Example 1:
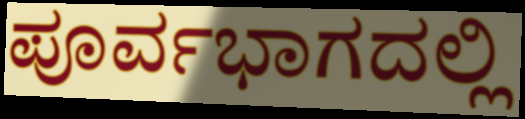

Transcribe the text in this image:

ಪೂರ್ವಭಾಗದಲ್ಲಿ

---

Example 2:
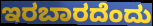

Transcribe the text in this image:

ಇರಬಾರದೆಂದು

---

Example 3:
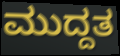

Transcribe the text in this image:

ಮುದ್ದತ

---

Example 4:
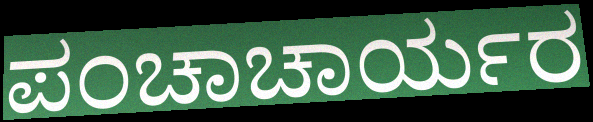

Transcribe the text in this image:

ಪಂಚಾಚಾರ್ಯರ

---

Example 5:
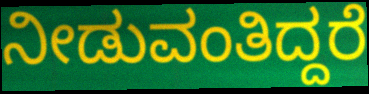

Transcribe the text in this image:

ನೀಡುವಂತಿದ್ದರೆ